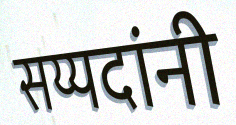
सय्यदांनी